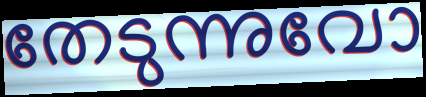
തേടുന്നുവോ